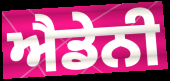
ਐਡੇਨੀ